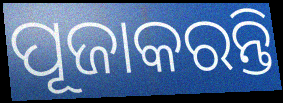
ପୂଜାକରନ୍ତି